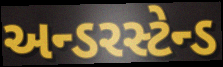
અન્ડરસ્ટેન્ડ